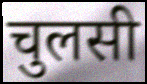
चुलसी